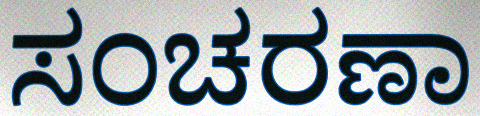
ಸಂಚರಣಾ